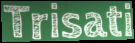
Trisati